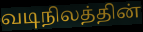
வடிநிலத்தின்